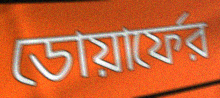
ডোয়ার্ফের